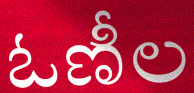
ఓణీల